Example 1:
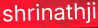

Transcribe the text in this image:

shrinathji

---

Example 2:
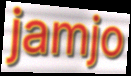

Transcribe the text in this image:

jamjo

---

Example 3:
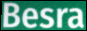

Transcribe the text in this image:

Besra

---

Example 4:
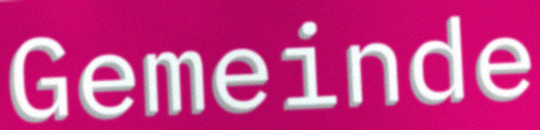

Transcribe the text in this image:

Gemeinde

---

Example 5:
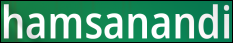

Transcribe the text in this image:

hamsanandi